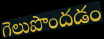
గెలుపొందడం